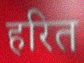
हरित